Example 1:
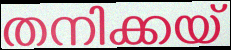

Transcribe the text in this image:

തനിക്കയ്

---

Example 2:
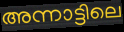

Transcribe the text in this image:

അന്നാട്ടിലെ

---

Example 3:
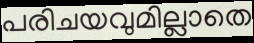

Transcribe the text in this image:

പരിചയവുമില്ലാതെ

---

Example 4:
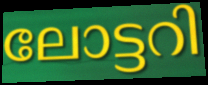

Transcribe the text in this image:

ലോട്ടറി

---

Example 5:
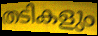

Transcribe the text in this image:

തടികളും